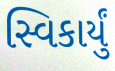
સ્વિકાર્યું